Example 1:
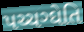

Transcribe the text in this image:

પચ્ચગ્ઘેતિ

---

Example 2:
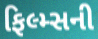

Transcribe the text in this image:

ફિલ્મ્સની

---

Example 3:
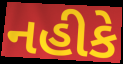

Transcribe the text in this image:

નહીકે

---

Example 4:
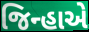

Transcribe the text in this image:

જિન્હાએ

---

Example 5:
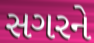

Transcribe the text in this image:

સગરને